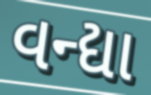
વન્દ્યા